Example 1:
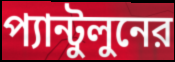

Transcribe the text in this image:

প্যান্টুলুনের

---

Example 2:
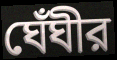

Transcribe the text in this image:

ঘেঁঘীর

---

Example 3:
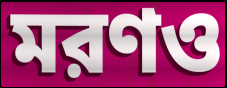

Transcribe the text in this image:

মরণও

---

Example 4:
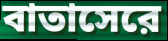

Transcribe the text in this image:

বাতাসেরে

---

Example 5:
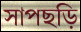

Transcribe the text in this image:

সাপছড়ি